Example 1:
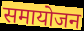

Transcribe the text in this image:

समायोजन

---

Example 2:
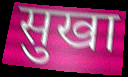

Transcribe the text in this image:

सुखा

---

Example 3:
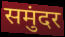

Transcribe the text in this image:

समुंदर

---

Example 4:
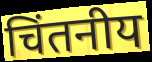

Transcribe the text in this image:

चिंतनीय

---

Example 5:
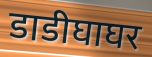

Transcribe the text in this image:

डाडीघाघर